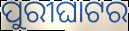
ପୁରୀଘାଟର